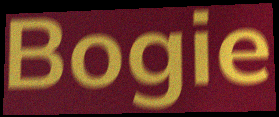
Bogie